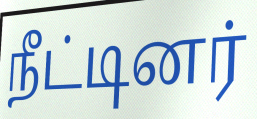
நீட்டினர்